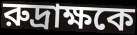
রুদ্রাক্ষকে